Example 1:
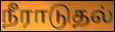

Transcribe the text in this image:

நீராடுதல்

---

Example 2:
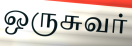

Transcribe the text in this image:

ஒருசுவர்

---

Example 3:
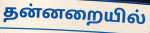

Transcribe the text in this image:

தன்னறையில்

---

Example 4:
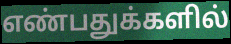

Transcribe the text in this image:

எண்பதுக்களில்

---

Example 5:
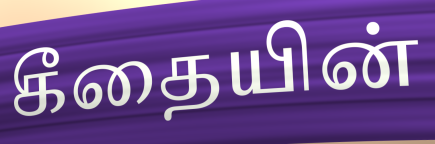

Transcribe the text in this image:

கீதையின்